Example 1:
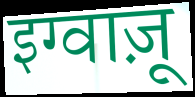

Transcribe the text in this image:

इग्वाज़ू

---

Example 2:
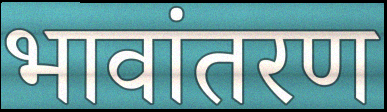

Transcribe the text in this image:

भावांतरण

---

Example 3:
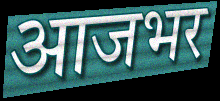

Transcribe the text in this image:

आजभर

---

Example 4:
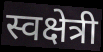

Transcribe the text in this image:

स्वक्षेत्री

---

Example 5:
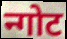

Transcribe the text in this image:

न्गोट